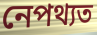
নেপথ্যত